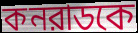
কনরাডকে